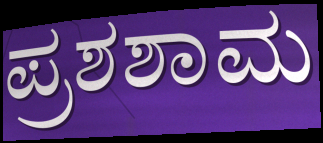
ಪ್ರಶಶಾಮ